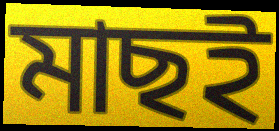
মাছই